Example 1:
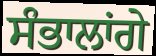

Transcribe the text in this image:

ਸੰਭਾਲਾਂਗੇ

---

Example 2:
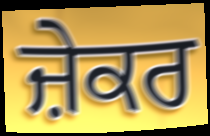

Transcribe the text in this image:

ਜ਼ੇਕਰ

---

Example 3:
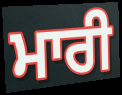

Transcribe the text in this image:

ਮਾਰੀ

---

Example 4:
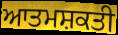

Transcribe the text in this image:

ਆਤਮਸ਼ਕਤੀ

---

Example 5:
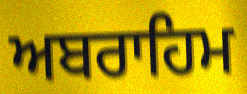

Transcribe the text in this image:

ਅਬਰਾਹਿਮ